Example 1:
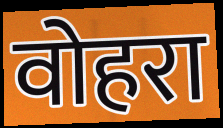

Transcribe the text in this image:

वोहरा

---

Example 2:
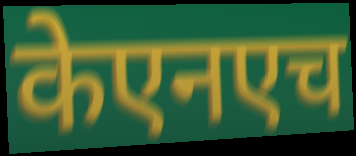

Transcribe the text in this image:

केएनएच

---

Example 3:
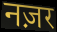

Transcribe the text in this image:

नज़र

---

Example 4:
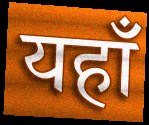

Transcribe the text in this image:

यहाँ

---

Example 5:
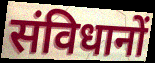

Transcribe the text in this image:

संविधानों